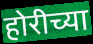
होरीच्या